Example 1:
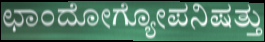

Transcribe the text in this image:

ಛಾಂದೋಗ್ಯೋಪನಿಷತ್ತು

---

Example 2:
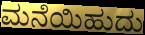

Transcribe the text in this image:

ಮನೆಯಿಹುದು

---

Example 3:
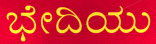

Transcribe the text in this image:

ಭೇದಿಯು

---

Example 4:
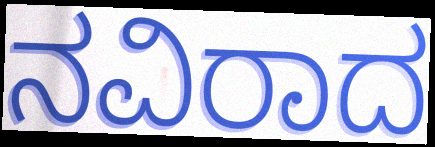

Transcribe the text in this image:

ನವಿರಾದ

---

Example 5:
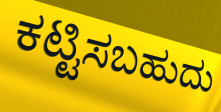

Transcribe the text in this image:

ಕಟ್ಟಿಸಬಹುದು